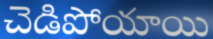
చెడిపోయాయి